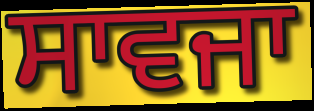
ਸਾਵਜਾ